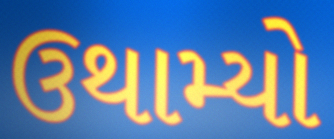
ઉથામ્યો